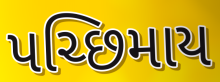
પચ્છિમાય